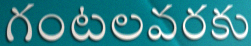
గంటలవరకు